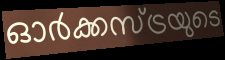
ഓർക്കസ്ട്രയുടെ